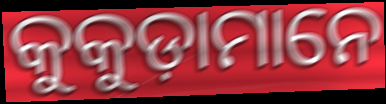
କୁକୁଡ଼ାମାନେ